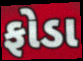
ફોડા